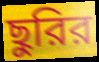
ছুরির